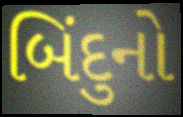
બિંદુનો